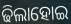
ଢିଲାହୋଇ